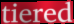
tiered